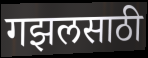
गझलसाठी